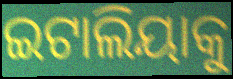
ଇଟାଲିୟାକୁ